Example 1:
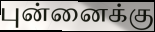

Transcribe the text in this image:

புன்னைக்கு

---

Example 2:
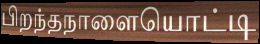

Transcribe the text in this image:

பிறந்தநாளையொட்டி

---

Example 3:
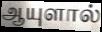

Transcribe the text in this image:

ஆயுளால்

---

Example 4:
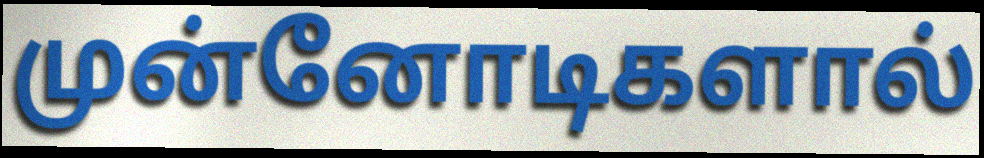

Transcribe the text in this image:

முன்னோடிகளால்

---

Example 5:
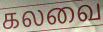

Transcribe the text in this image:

கலவை